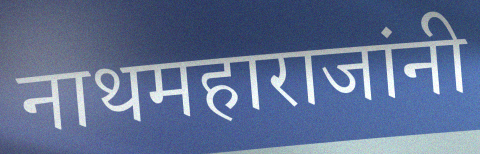
नाथमहाराजांनी